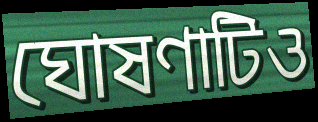
ঘোষণাটিও